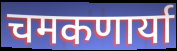
चमकणार्या